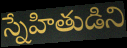
స్నేహితుడిని